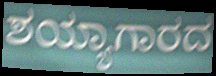
ಶಯ್ಯಾಗಾರದ